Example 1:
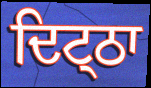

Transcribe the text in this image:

ਦਿਟ੍ਠਾ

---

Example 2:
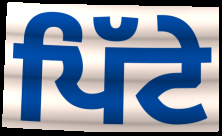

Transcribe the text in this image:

ਪਿੱਟੇ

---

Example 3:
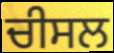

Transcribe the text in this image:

ਚੀਸਲ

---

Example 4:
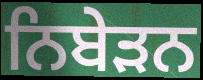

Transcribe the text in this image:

ਨਿਬੇੜਨ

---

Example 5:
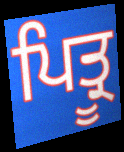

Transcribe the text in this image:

ਪਿਤ੍ਰੂ